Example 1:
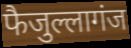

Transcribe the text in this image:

फैजुल्लागंज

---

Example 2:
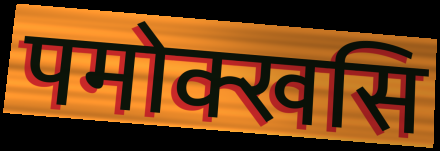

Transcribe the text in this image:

पमोक्खसि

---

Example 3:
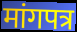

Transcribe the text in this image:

मांगपत्र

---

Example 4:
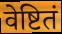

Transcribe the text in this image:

वेष्टितं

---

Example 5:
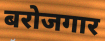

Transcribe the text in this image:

बरोजगार